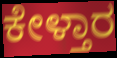
ಕೇಳ್ತಾರ